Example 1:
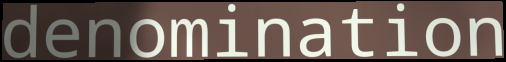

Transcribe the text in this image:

denomination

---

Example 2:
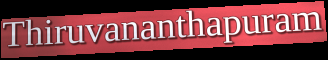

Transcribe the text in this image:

Thiruvananthapuram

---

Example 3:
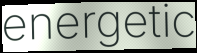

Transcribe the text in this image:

energetic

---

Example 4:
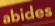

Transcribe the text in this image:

abides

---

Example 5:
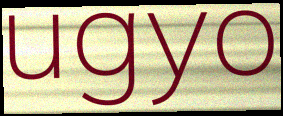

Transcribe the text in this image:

ugyo